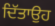
ਦਿੱਤਾਉਹ